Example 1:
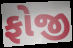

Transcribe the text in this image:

ફોજી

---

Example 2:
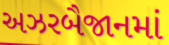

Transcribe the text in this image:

અઝરબૈજાનમાં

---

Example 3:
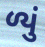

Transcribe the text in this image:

ળ્યું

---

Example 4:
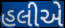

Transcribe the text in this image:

હલીએ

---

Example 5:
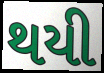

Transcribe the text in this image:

થયી